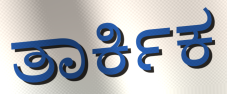
ತಾರ್ಕಿಕ